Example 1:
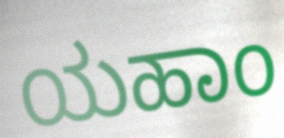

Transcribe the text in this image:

ಯಹಾಂ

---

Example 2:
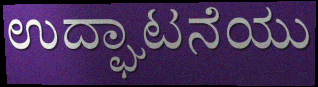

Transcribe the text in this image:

ಉದ್ಘಾಟನೆಯು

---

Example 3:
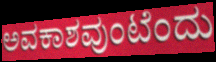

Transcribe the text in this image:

ಅವಕಾಶವುಂಟೆಂದು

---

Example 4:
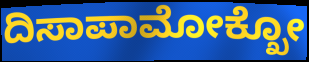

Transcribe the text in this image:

ದಿಸಾಪಾಮೋಕ್ಖೋ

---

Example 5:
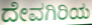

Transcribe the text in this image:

ದೇವಗಿರಿಯ